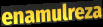
enamulreza